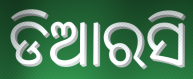
ଡିଆରସି